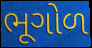
ભૂગોળ